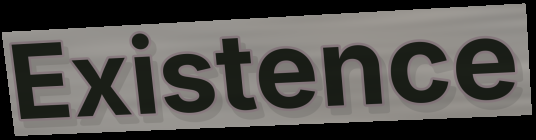
Existence